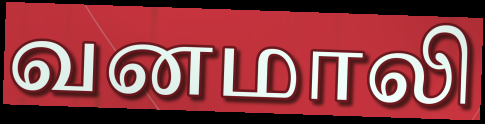
வனமாலி